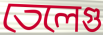
তেলেগু